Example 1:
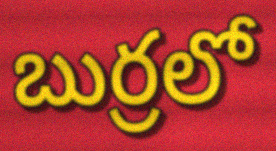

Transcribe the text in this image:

బుర్రలో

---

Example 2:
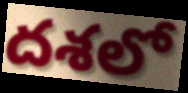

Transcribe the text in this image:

దశలో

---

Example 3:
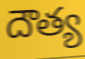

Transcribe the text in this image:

దౌత్య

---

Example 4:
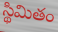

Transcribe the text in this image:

స్థిమితం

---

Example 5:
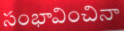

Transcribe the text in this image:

సంభావించినా